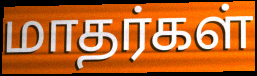
மாதர்கள்